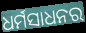
ଧର୍ମସାଧନର